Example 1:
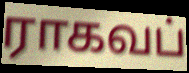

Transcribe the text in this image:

ராகவப்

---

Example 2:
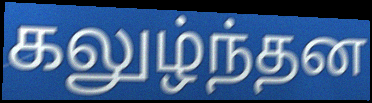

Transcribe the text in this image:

கலுழ்ந்தன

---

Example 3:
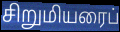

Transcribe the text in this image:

சிறுமியரைப்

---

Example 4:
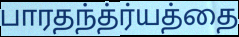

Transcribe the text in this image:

பாரதந்த்ர்யத்தை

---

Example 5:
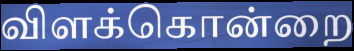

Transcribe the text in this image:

விளக்கொன்றை